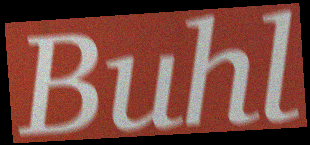
Buhl